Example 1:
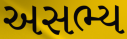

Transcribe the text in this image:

અસભ્ય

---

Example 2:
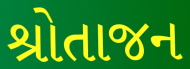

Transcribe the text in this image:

શ્રોતાજન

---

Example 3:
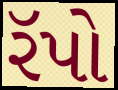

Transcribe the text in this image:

રૅપો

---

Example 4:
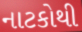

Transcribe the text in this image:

નાટકોથી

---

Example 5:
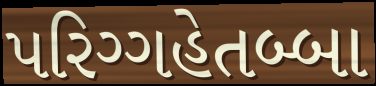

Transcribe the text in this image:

પરિગ્ગહેતબ્બા